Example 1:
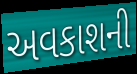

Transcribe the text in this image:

અવકાશની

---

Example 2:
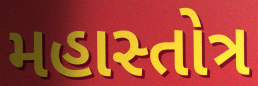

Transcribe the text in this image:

મહાસ્તોત્ર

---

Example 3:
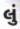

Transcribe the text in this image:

લું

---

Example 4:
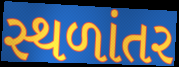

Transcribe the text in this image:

સ્થળાંતર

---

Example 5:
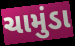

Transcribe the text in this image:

ચામુંડા